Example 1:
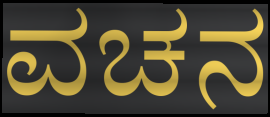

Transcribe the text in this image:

ವಚನ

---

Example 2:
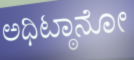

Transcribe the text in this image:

ಅಧಿಟ್ಠಾನೋ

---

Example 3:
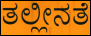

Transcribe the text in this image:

ತಲ್ಲೀನತೆ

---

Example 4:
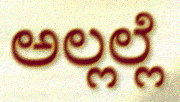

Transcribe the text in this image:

ಅಲ್ಲಲ್ಲೆ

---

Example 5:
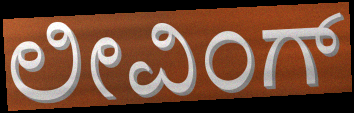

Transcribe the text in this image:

ಲೀವಿಂಗ್